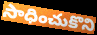
సాధించుకొని